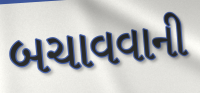
બચાવવાની